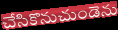
చేసికొనుచుండెను